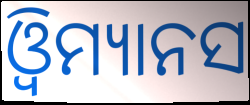
ଓ୍ବିମ୍ୟାନସ